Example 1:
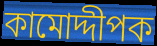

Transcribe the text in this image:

কামোদ্দীপক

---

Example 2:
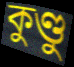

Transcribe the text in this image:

কুণ্ডু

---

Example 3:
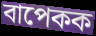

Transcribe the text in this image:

বাপেকক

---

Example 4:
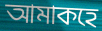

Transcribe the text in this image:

আমাকহে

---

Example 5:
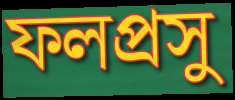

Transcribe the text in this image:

ফলপ্ৰসু